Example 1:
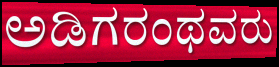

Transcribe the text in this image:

ಅಡಿಗರಂಥವರು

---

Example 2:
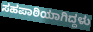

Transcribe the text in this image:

ಸಹಪಾಠಿಯಾಗಿದ್ದಳು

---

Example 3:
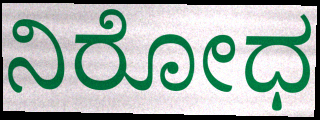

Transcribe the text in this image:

ನಿರೋಧ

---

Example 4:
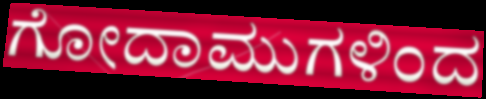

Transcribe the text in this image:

ಗೋದಾಮುಗಳಿಂದ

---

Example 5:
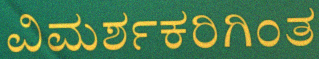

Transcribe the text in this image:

ವಿಮರ್ಶಕರಿಗಿಂತ